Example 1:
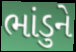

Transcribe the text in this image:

ભાંડુને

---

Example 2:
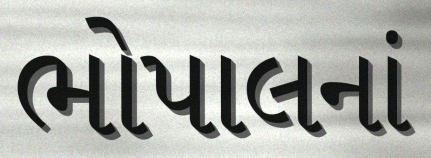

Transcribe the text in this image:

ભોપાલનાં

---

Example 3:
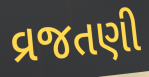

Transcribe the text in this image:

વ્રજતણી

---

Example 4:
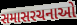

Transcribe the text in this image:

સમાસરચનાઓ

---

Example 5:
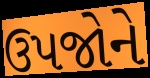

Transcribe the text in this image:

ઉપજોને